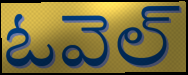
ఓవెల్